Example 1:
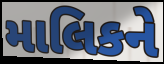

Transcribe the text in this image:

માલિકને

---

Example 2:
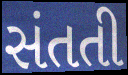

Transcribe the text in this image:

સંતતી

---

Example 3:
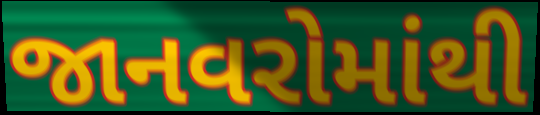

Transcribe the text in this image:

જાનવરોમાંથી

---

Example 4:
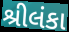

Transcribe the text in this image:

શ્રીલંકા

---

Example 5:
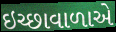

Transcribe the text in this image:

ઇચ્છાવાળાએ